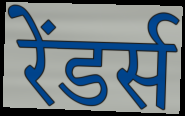
रेंडर्स